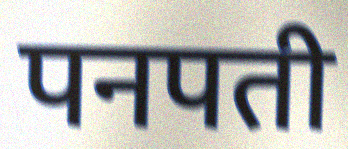
पनपती